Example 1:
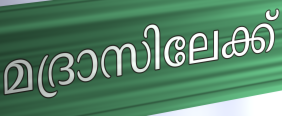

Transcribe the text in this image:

മദ്രാസിലേക്ക്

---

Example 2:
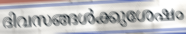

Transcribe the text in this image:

ദിവസങ്ങൾക്കുശേഷം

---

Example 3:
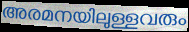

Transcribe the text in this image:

അരമനയിലുള്ളവരും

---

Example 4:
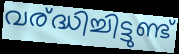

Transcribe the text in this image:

വര്ദ്ധിച്ചിട്ടുണ്ട്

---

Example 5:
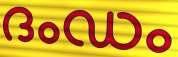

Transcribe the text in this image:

ദംഡം